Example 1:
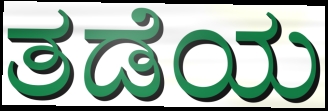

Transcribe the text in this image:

ತಡೆಯ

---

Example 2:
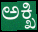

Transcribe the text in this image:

ಅಕ್ಖಿ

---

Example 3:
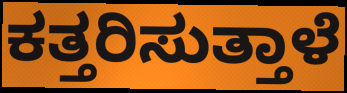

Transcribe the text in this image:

ಕತ್ತರಿಸುತ್ತಾಳೆ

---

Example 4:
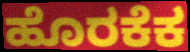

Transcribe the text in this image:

ಹೊರಕೆಕ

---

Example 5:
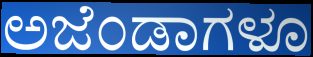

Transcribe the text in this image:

ಅಜೆಂಡಾಗಳೂ